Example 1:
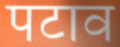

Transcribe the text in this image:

पटाव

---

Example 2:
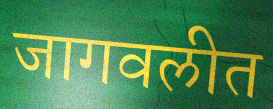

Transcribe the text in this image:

जागवलीत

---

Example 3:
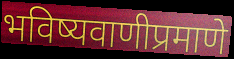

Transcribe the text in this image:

भविष्यवाणीप्रमाणे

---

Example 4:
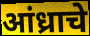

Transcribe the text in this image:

आंध्राचे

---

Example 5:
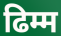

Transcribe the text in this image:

ढिम्म